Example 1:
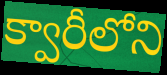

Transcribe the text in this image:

క్వారీలోని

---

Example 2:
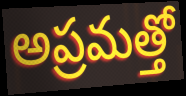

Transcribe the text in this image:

అప్రమత్తో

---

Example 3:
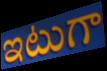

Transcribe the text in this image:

ఇటుగా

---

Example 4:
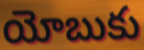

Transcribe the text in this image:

యోబుకు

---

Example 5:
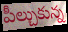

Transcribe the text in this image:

పీల్చుకున్న